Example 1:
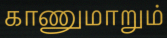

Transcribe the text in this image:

காணுமாறும்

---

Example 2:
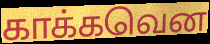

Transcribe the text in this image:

காக்கவென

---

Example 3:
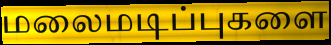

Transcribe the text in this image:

மலைமடிப்புகளை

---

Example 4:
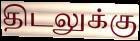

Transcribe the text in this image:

திடலுக்கு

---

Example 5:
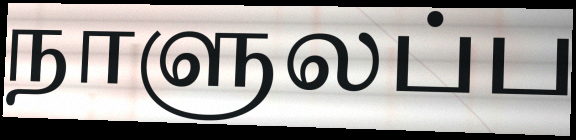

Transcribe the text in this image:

நாளுலப்ப